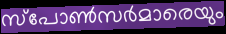
സ്പോൺസർമാരെയും